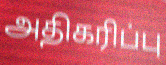
அதிகரிப்பு